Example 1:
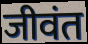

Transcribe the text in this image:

जीवंत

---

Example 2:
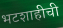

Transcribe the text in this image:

भटशाहीची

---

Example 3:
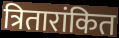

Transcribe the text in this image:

त्रितारांकित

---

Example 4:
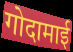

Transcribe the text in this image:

गोदामाई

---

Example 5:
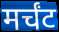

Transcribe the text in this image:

मर्चंट